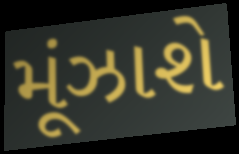
મૂંઝાશે